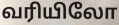
வரியிலோ